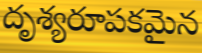
దృశ్యరూపకమైన